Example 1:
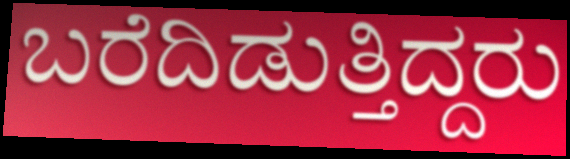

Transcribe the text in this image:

ಬರೆದಿಡುತ್ತಿದ್ದರು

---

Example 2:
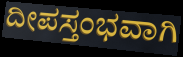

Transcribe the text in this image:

ದೀಪಸ್ತಂಭವಾಗಿ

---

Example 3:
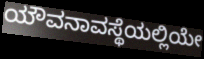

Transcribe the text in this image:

ಯೌವನಾವಸ್ಥೆಯಲ್ಲಿಯೇ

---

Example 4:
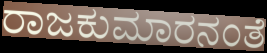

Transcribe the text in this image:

ರಾಜಕುಮಾರನಂತೆ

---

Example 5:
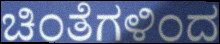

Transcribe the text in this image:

ಚಿಂತೆಗಳಿಂದ